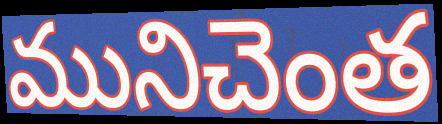
మునిచెంత